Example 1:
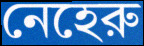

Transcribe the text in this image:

নেহেরু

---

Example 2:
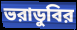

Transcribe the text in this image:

ভরাডুবির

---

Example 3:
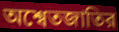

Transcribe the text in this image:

অশ্বেতজাতির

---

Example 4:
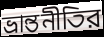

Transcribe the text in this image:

ভ্রান্তনীতির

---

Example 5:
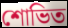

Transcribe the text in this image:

শোভিত